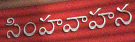
సింహవాహన